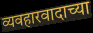
व्यवहारवादाच्या